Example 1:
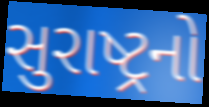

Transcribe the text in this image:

સુરાષ્ટ્રનો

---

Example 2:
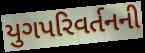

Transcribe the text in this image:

યુગપરિવર્તનની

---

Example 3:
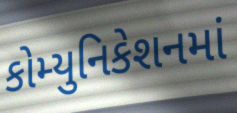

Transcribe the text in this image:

કોમ્યુનિકેશનમાં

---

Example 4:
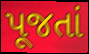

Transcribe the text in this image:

પૂજતાં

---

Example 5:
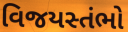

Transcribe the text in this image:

વિજયસ્તંભો